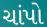
ચાંપો